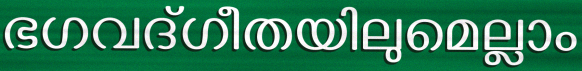
ഭഗവദ്ഗീതയിലുമെല്ലാം